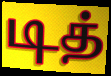
டித்